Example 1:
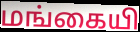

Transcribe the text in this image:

மங்கையி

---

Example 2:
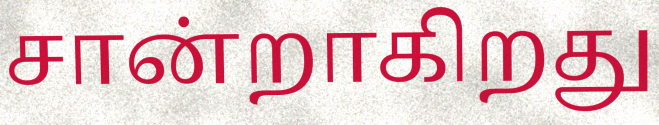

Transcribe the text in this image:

சான்றாகிறது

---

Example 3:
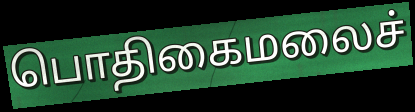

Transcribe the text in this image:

பொதிகைமலைச்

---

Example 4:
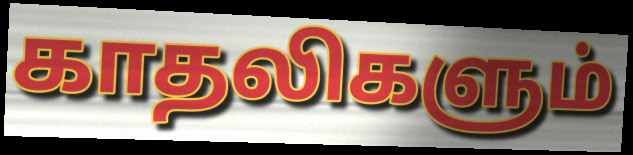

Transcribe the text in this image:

காதலிகளும்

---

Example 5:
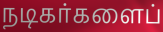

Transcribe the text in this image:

நடிகர்களைப்